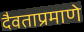
दैवताप्रमाणे